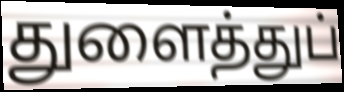
துளைத்துப்